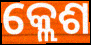
କ୍ଲେଶ